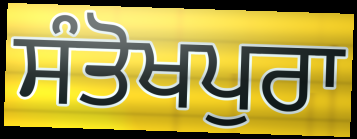
ਸੰਤੋਖਪੁਰਾ